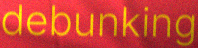
debunking